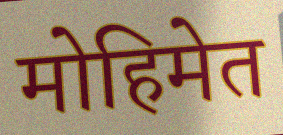
मोहिमेत